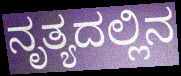
ನೃತ್ಯದಲ್ಲಿನ